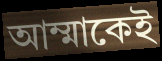
আম্মাকেই